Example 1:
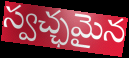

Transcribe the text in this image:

స్వచ్ఛమైన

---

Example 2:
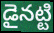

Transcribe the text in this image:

డైనట్టి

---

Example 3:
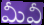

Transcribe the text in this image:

మీవీ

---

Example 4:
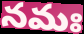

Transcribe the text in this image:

నమః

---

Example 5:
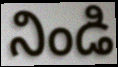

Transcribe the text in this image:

నిండి